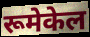
रूमेकेल